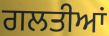
ਗਲਤੀਆਂ